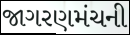
જાગરણમંચની